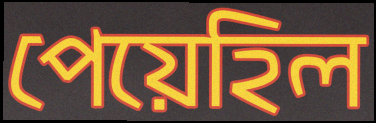
পেয়েহিল